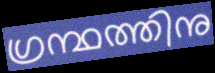
ഗ്രന്ഥത്തിനു